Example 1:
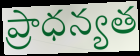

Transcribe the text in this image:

ప్రాధన్యత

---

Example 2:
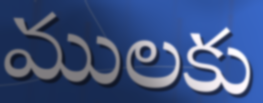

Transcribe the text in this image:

ములకు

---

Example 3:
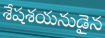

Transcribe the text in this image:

శేషశయనుడైన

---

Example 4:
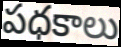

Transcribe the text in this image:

పధకాలు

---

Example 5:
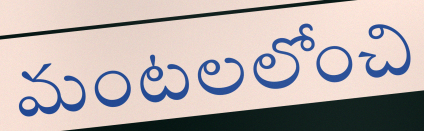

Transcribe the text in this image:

మంటలలోంచి